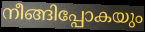
നീങ്ങിപ്പോകയും